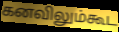
கனவிலும்கூட